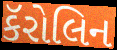
કૅરોલિન